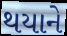
થયાને